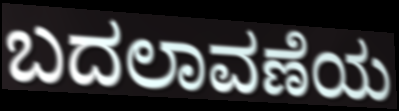
ಬದಲಾವಣೆಯ